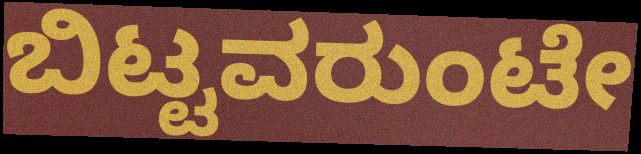
ಬಿಟ್ಟವರುಂಟೇ